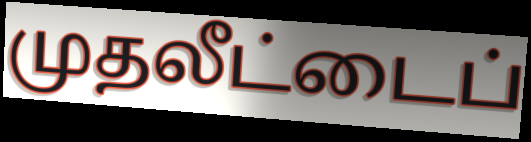
முதலீட்டைப்